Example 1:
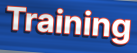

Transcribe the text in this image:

Training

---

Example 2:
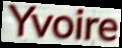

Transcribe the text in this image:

Yvoire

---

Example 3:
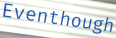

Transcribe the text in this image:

Eventhough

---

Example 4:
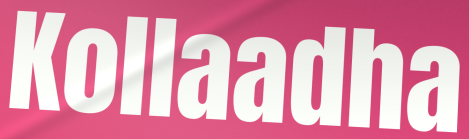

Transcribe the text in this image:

Kollaadha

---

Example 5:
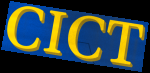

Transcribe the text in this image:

CICT